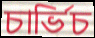
চাৰ্ভিচ